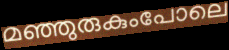
മഞ്ഞുരുകുംപോലെ